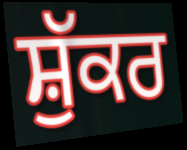
ਸ਼ੁੱਕਰ